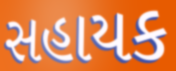
સહાયક